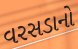
વરસડાનો